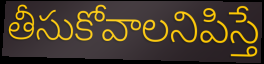
తీసుకోవాలనిపిస్తే